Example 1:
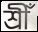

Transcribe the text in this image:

শ্ৰীঁ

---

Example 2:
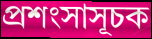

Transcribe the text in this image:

প্ৰশংসাসূচক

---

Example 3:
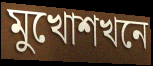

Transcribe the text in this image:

মুখোশখনে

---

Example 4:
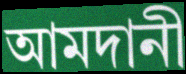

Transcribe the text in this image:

আমদানী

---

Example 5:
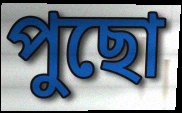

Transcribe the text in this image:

পুছো